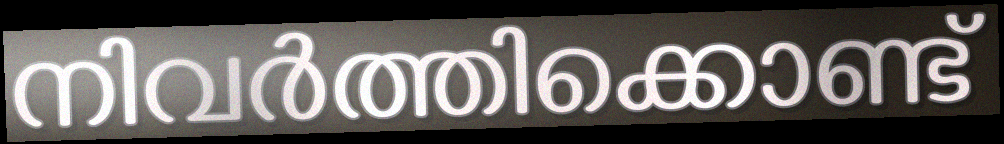
നിവർത്തിക്കൊണ്ട്